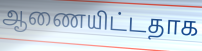
ஆணையிட்டதாக